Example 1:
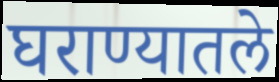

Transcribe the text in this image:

घराण्यातले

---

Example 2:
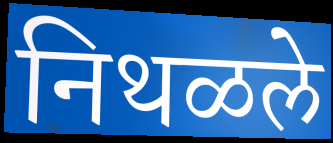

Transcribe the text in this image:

निथळले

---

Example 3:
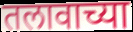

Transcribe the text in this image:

तलावाच्या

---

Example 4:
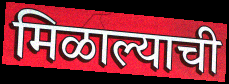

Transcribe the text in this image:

मिळाल्याची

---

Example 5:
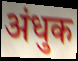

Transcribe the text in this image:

अंधुक